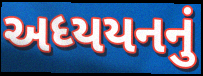
અધ્યયનનું